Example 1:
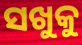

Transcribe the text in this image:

ସଖୁକୁ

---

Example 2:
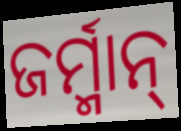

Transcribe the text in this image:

ଜର୍ମ୍ମାନ୍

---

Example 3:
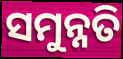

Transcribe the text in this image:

ସମୁନ୍ନତି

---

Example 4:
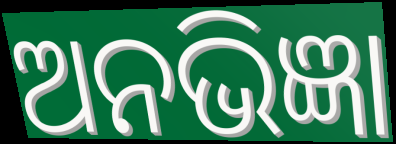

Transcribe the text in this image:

ଅନଭିଜ୍ଞା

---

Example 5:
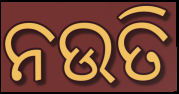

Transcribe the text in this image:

ନଉତି